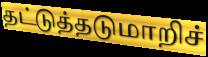
தட்டுத்தடுமாறிச்